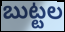
బుట్టల